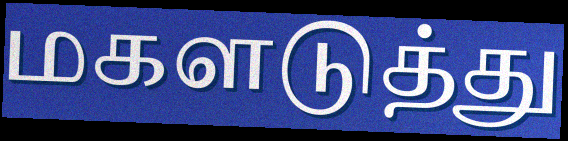
மகளடுத்து